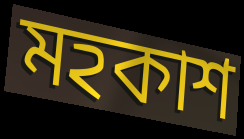
মহকাশ